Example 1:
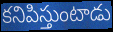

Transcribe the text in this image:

కనిపిస్తుంటాడు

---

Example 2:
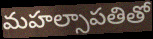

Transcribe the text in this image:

మహల్సాపతితో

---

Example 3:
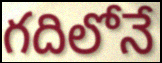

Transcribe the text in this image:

గదిలోనే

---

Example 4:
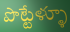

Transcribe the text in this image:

పొట్టేళ్ళూ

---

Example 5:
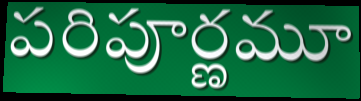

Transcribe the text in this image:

పరిపూర్ణమూ